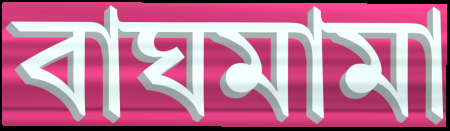
বাঘমামা